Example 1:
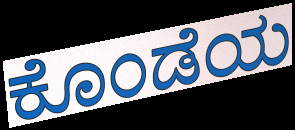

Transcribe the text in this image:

ಕೊಂಡೆಯ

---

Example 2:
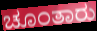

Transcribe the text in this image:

ಚೂಂತಾರು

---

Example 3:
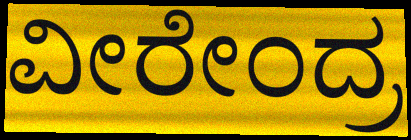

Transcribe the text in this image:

ವೀರೇಂದ್ರ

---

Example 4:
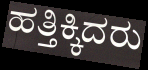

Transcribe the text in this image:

ಹತ್ತಿಕ್ಕಿದರು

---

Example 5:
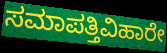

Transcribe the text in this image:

ಸಮಾಪತ್ತಿವಿಹಾರೇ